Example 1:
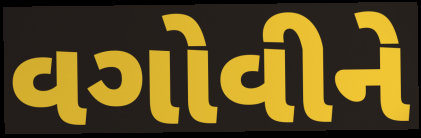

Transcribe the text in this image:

વગોવીને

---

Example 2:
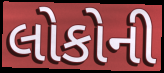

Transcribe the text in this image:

લોકોની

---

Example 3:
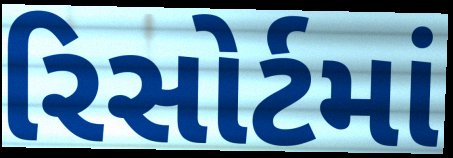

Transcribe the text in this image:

રિસોર્ટમાં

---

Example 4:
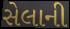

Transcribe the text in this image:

સેલાની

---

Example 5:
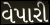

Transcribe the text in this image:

વેપારી